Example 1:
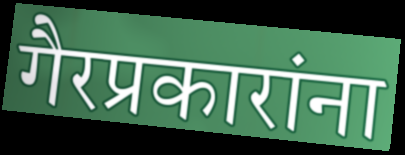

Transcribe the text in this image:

गैरप्रकारांना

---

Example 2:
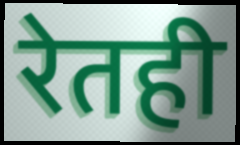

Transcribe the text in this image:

रेतही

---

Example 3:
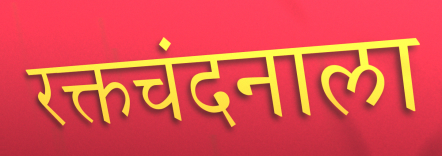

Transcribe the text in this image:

रक्तचंदनाला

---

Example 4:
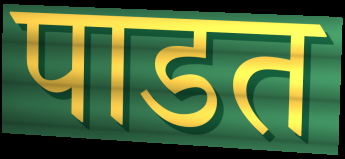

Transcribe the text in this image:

पाडत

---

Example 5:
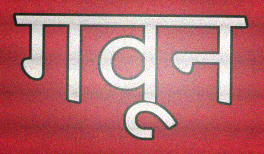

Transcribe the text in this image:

गवून